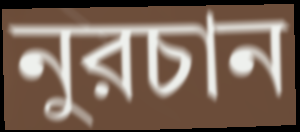
নুরচান